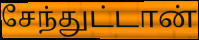
சேந்துட்டான்